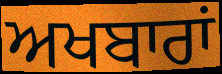
ਅਖਬਾਰਾਂ